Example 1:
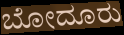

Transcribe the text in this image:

ಬೋದೂರು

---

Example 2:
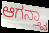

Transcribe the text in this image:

ಆಗನ್ತ್ವಾ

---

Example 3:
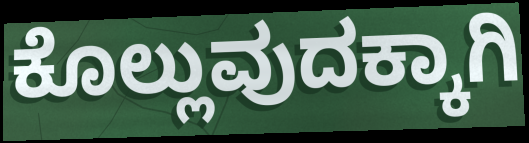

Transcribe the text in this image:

ಕೊಲ್ಲುವುದಕ್ಕಾಗಿ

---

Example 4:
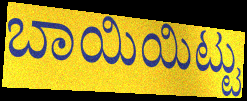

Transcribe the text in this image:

ಬಾಯಿಯಿಟ್ಟು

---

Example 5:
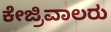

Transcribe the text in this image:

ಕೇಜ್ರಿವಾಲರು